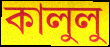
কালুলু